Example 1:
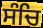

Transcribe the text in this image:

ਸੰਚਿ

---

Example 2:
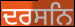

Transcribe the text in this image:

ਦਰਸਨਿ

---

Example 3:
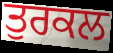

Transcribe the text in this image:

ਤੁਰਕਲ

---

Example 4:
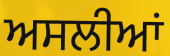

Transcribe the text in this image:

ਅਸਲੀਆਂ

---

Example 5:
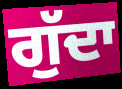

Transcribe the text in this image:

ਗੁੱਦਾ